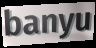
banyu